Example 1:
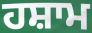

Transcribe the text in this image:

ਹਸ਼ਾਮ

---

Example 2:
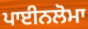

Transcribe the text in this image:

ਪਾਈਨਲੋਮਾ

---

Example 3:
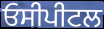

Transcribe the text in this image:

ਓਸੀਪੀਟਲ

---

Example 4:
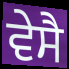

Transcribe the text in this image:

ਵੇਸੈ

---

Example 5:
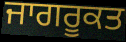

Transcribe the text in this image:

ਜਾਗਰੂਕਤ